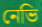
নেভি